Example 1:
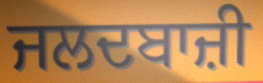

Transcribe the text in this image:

ਜਲਦਬਾਜ਼ੀ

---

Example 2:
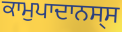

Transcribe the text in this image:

ਕਾਮੁਪਾਦਾਨਸ੍ਸ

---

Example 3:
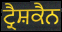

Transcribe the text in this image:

ਟ੍ਰੈਸ਼ਕੈਨ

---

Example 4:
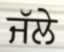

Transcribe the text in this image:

ਜੱਲੇ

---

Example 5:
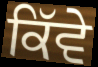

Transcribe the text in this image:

ਕਿੱਵੇ